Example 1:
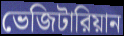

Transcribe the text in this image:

ভেজিটারিয়ান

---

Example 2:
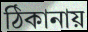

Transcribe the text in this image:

ঠিকানায়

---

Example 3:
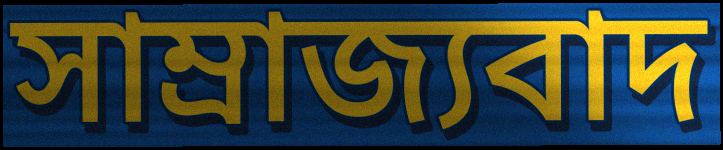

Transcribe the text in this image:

সাম্রাজ্যবাদ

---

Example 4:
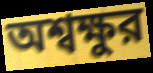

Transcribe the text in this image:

অশ্বক্ষুর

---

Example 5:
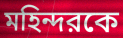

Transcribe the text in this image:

মহিন্দরকে